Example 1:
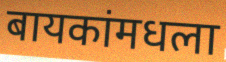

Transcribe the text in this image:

बायकांमधला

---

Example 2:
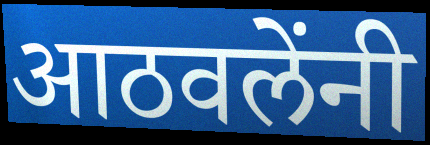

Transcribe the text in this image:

आठवलेंनी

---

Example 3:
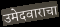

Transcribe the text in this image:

उमेदवाराचा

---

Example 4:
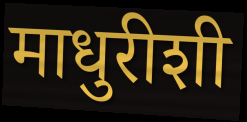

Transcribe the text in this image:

माधुरीशी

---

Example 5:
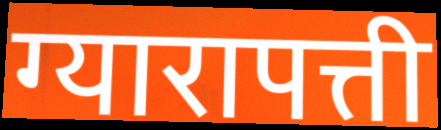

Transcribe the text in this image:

ग्यारापत्ती